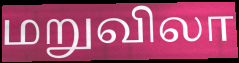
மறுவிலா